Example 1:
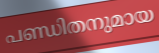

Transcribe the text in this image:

പണ്ഡിതനുമായ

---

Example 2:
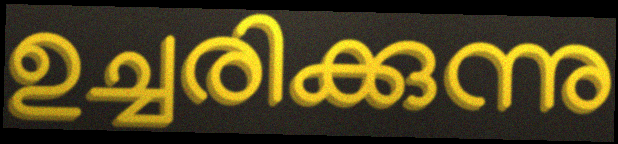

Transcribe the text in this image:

ഉച്ചരിക്കുന്നു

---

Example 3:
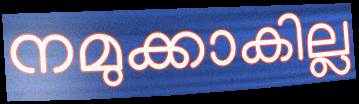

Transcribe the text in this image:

നമുക്കാകില്ല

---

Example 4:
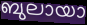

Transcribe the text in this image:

ബുലായാ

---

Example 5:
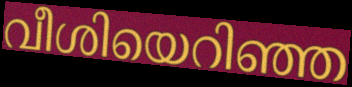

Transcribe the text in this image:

വീശിയെറിഞ്ഞ